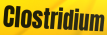
Clostridium